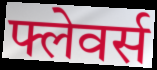
फ्लेवर्स